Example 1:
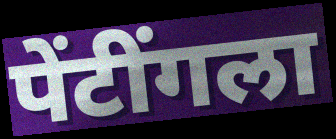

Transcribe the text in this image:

पेंटींगला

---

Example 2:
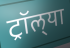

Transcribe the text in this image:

ट्रॉल्या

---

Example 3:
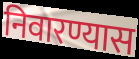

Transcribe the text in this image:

निवारण्यास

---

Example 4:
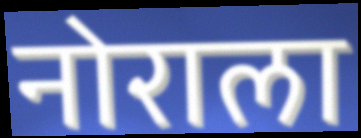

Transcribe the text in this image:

नोराला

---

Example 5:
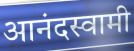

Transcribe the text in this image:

आनंदस्वामी